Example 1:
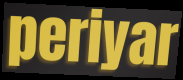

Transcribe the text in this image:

periyar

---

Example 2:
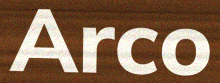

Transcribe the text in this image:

Arco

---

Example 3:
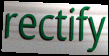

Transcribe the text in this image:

rectify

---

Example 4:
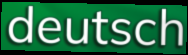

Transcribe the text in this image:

deutsch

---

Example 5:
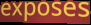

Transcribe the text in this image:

exposes